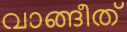
വാങ്ങീത്